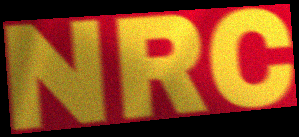
NRC